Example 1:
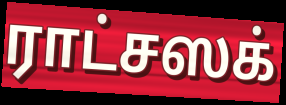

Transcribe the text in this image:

ராட்சஸக்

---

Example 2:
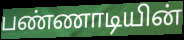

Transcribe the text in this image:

பண்ணாடியின்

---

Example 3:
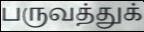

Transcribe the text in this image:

பருவத்துக்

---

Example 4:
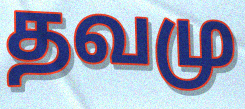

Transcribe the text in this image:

தவமு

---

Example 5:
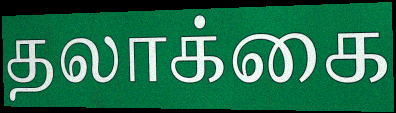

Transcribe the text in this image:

தலாக்கை